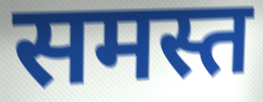
समस्त